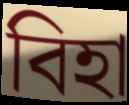
বিহা